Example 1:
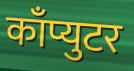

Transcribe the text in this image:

काँप्युटर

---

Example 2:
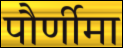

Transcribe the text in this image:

पौर्णीमा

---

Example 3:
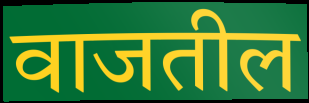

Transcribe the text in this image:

वाजतील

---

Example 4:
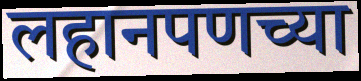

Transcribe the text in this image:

लहानपणच्या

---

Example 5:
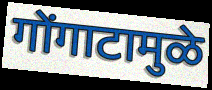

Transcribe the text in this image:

गोंगाटामुळे